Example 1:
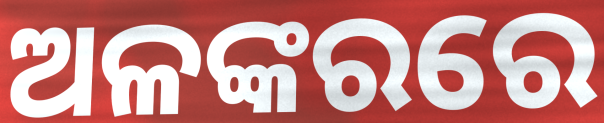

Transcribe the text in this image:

ଅଳଙ୍କରରେ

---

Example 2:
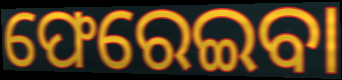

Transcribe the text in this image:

ଫେରେଇବା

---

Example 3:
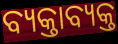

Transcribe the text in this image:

ବ୍ୟକ୍ତାବ୍ୟକ୍ତ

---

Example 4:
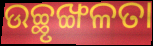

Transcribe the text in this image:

ଉଚ୍ଛୃଙ୍ଖଳତା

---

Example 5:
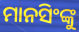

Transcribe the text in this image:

ମାନସିଂଙ୍କୁ